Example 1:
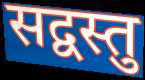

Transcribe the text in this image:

सद्वस्तु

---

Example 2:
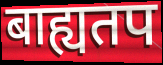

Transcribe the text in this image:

बाह्यतप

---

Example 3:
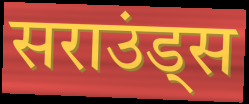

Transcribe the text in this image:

सराउंड्स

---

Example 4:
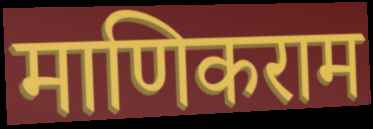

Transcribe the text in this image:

माणिकराम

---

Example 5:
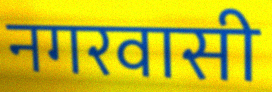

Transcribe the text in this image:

नगरवासी